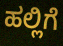
ಹಲ್ಲಿಗೆ